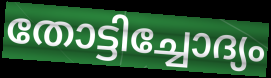
തോട്ടിച്ചോദ്യം